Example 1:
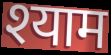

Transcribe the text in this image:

श्‍याम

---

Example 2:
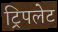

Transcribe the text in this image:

ट्रिपलेट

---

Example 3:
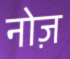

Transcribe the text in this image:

नोज़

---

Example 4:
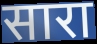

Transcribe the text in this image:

सारा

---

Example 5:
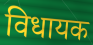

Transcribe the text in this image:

विधायक